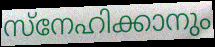
സ്നേഹിക്കാനും